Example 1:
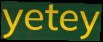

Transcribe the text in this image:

yetey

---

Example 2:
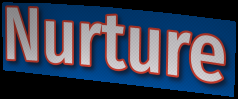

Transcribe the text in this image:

Nurture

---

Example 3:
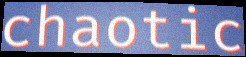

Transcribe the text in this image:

chaotic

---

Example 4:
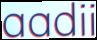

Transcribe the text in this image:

aadii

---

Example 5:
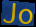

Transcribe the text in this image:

Jo